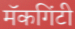
मॅकगिंटी